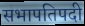
सभापतिपदी